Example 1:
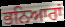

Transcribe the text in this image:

ਭਨਿਆਰਾਂ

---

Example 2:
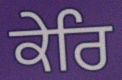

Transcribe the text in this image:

ਕੇਰਿ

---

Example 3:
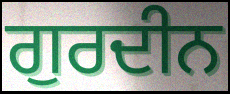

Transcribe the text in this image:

ਗੁਰਦੀਨ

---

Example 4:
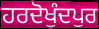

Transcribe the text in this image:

ਹਰਦੋਖੁੰਦਪੁਰ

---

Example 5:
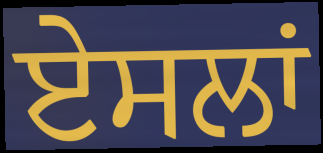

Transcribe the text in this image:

ਏਸਲਾਂ